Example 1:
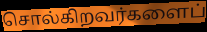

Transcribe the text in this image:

சொல்கிறவர்களைப்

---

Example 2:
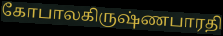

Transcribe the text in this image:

கோபாலகிருஷ்ணபாரதி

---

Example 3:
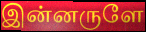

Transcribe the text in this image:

இன்னருளே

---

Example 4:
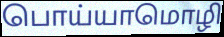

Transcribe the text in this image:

பொய்யாமொழி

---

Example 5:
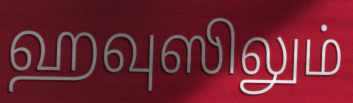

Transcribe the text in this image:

ஹவுஸிலும்